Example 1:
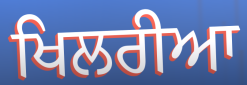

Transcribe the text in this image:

ਖਿਲਰੀਆ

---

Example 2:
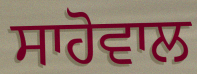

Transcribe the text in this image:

ਸਾਹੋਵਾਲ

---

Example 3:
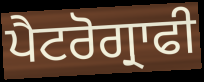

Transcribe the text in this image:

ਪੈਟਰੋਗ੍ਰਾਫੀ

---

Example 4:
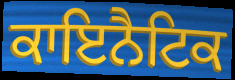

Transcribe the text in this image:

ਕਾਇਨੈਟਿਕ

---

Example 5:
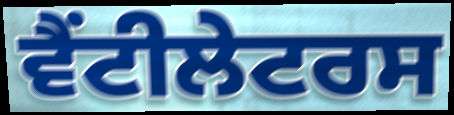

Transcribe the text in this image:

ਵੈਂਟੀਲੇਟਰਸ